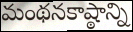
మంథనకాష్ఠాన్ని